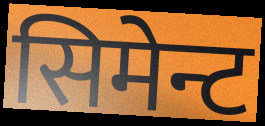
सिमेन्ट